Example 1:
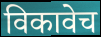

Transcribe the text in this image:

विकावेच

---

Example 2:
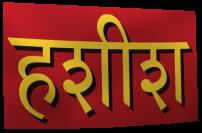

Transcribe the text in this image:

हशीश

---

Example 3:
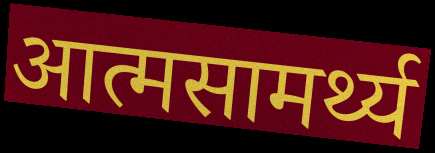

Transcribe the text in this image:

आत्मसामर्थ्य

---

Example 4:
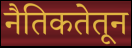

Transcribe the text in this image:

नैतिकतेतून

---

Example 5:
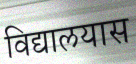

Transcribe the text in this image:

विद्यालयास